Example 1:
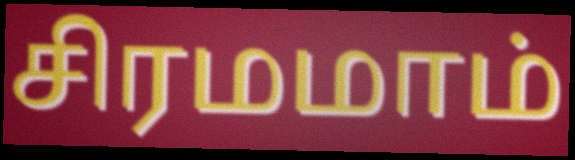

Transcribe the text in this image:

சிரமமாம்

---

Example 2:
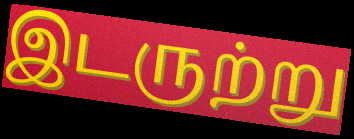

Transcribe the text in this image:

இடருற்று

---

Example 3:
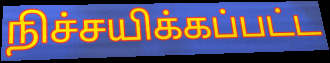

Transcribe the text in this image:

நிச்சயிக்கப்பட்ட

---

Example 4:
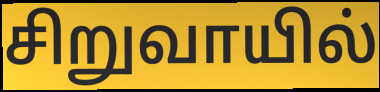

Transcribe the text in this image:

சிறுவாயில்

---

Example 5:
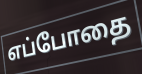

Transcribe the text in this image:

எப்போதை